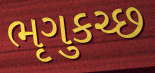
ભૃગુકચ્છ